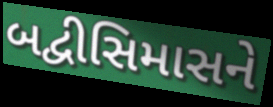
બદ્વીસિમાસને